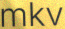
mkv